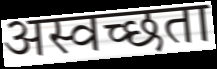
अस्वच्छता